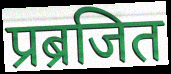
प्रब्रजित